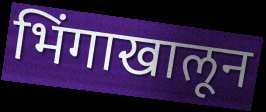
भिंगाखालून